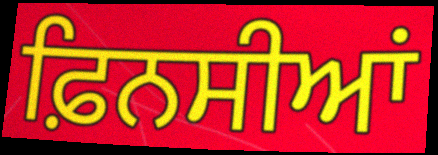
ਫ਼ਿਨਸੀਆਂ